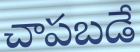
చాపబడే